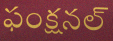
ఫంక్షనల్